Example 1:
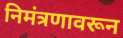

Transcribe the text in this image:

निमंत्रणावरून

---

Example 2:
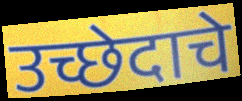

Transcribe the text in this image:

उच्छेदाचे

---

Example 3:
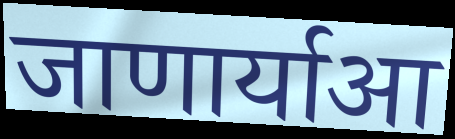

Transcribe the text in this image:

जाणार्याआ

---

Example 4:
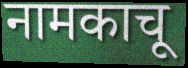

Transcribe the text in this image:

नामकाचू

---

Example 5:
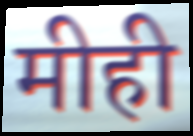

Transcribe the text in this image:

मीही